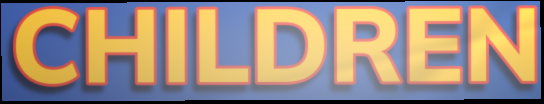
CHILDREN